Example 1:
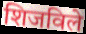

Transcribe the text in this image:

शिजविले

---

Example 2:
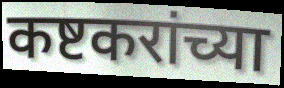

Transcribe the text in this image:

कष्टकरांच्या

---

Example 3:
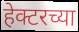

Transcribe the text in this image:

हेक्टरच्या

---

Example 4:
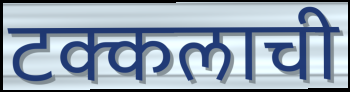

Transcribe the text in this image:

टक्कलाची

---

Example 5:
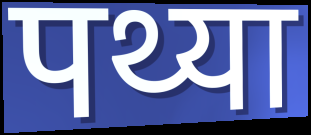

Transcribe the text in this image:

पथ्या